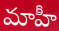
మాహీ